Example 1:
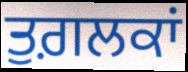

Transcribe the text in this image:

ਤੁਗ਼ਲਕਾਂ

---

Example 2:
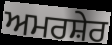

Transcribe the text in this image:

ਅਮਰਸ਼ੇਰ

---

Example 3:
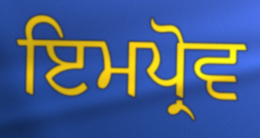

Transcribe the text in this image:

ਇਮਪ੍ਰੋਵ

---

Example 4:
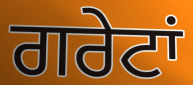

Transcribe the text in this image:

ਗਰੇਟਾਂ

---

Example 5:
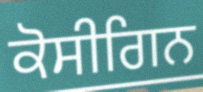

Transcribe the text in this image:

ਕੋਸੀਗਿਨ